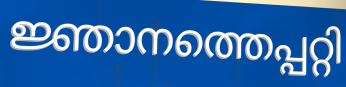
ജ്ഞാനത്തെപ്പറ്റി